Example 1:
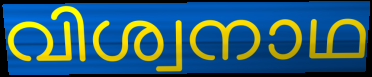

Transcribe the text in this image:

വിശ്വനാഥ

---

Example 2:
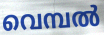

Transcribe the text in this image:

വെമ്പൽ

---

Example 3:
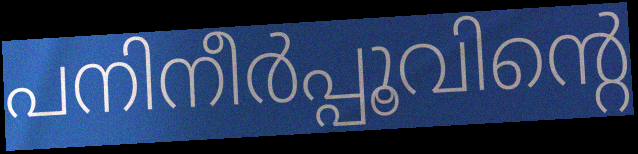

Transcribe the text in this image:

പനിനീർപ്പൂവിന്റെ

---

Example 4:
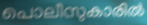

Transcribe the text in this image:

പൊലീസുകാരിൽ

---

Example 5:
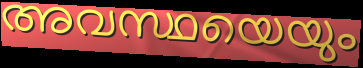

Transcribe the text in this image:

അവസ്ഥയെയും